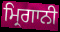
ਮ੍ਰਿਗਾਨੀ